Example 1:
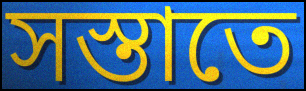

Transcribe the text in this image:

সস্তাতে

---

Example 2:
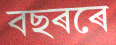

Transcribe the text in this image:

বছৰৰে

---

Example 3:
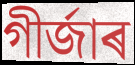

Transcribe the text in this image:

গীৰ্জাৰ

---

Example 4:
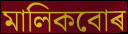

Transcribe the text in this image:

মালিকবোৰ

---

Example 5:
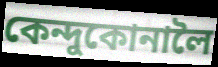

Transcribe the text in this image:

কেন্দুকোনালৈ